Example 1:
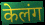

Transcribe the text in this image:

केलंग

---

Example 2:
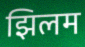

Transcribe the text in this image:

झिलम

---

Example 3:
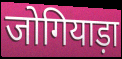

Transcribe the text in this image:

जोगियाड़ा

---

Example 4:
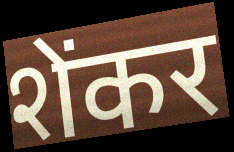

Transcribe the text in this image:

शेंकर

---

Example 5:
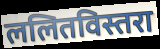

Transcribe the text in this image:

ललितविस्तरा